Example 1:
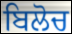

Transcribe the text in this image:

ਬਿਲੋਚ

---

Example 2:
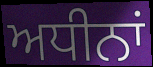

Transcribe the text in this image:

ਅਧੀਨਾਂ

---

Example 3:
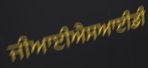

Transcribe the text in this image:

ਜੀਆਈਐਸਆਈਡੀ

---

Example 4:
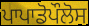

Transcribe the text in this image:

ਪਾਪਾਡੋਪੌਲੋਸ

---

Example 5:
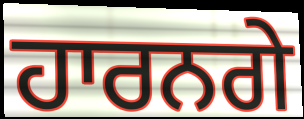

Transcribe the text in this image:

ਹਾਰਨਗੇ